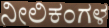
ನೀಲಿಕಂಗಳ